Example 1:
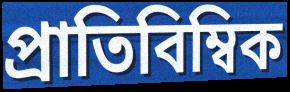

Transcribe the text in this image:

প্রাতিবিম্বিক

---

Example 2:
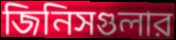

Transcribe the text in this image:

জিনিসগুলার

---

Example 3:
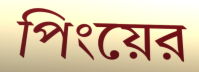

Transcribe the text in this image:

পিংয়ের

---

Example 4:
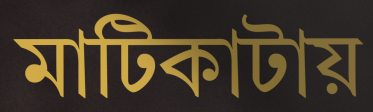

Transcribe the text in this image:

মাটিকাটায়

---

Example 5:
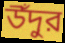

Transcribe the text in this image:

উঁদুর